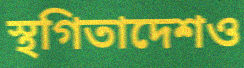
স্থগিতাদেশও